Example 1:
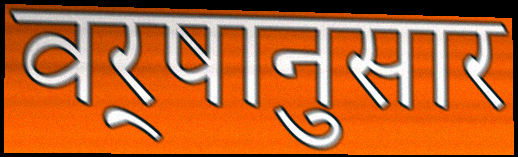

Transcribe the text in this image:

वर्षानुसार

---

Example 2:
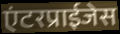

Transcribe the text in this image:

एंटरप्राईजेस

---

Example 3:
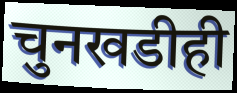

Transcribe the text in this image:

चुनखडीही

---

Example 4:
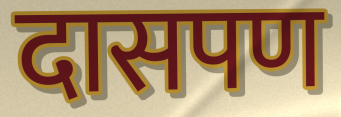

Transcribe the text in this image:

दासपण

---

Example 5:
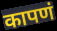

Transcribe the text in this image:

कापणं